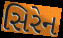
સિરેન